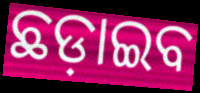
ଛଡ଼ାଇବ